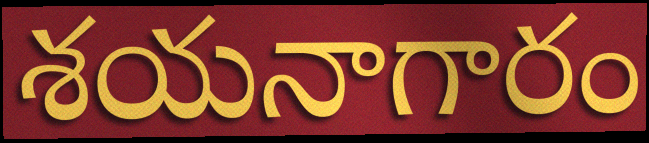
శయనాగారం